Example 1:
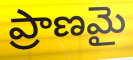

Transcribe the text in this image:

ప్రాణమై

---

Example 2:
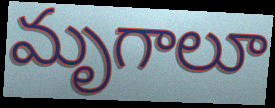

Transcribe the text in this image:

మృగాలూ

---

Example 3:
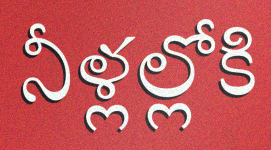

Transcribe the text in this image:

నీళ్లల్లోకి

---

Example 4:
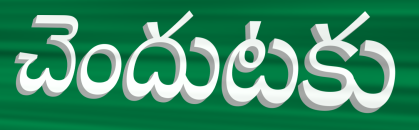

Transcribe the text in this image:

చెందుటకు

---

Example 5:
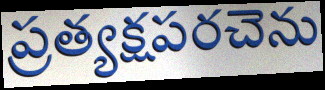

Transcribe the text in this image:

ప్రత్యక్షపరచెను